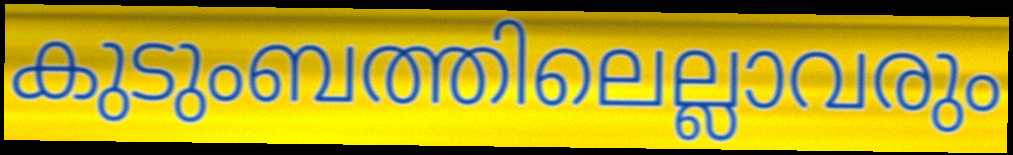
കുടുംബത്തിലെല്ലാവരും